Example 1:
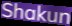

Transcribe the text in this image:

Shakun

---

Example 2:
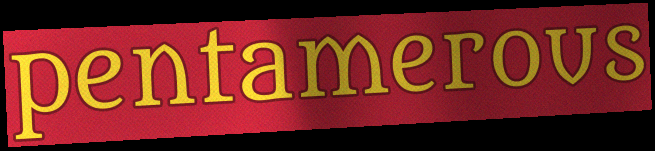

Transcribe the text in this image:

pentamerous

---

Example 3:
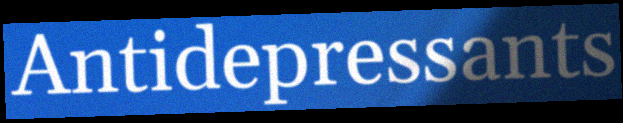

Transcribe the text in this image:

Antidepressants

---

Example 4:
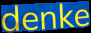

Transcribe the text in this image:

denke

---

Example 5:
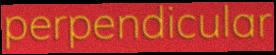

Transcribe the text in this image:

perpendicular